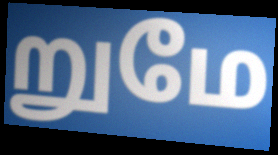
றுமே